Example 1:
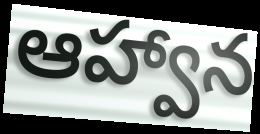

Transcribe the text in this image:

ఆహ్వాన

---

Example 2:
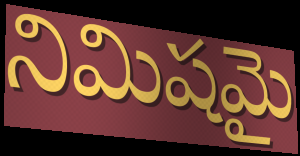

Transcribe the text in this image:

నిమిషమై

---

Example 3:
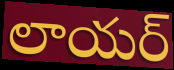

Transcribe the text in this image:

లాయర్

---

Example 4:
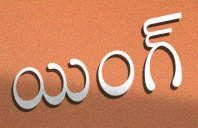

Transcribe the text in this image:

యింగ్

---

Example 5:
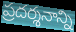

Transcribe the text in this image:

ప్రదర్శనాన్ని